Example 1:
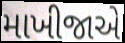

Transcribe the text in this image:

માખીજાએ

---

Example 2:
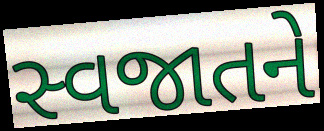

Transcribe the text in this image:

સ્વજાતને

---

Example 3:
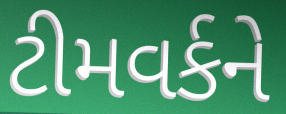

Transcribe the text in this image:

ટીમવર્કને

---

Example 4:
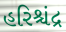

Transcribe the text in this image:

હરિશ્ચંદ્ર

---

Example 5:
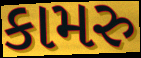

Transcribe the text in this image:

કામરુ